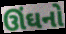
ઊંઘનો